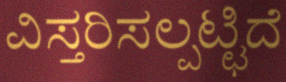
ವಿಸ್ತರಿಸಲ್ಪಟ್ಟಿದೆ